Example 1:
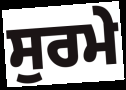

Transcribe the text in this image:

ਸੁਰਮੇ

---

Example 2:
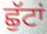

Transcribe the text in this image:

ਛੁੱਟਾਂ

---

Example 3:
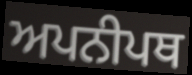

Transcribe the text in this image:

ਅਪਨੀਪਥ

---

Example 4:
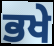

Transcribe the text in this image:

ਭਖੇ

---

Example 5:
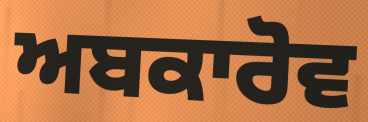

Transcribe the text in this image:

ਅਬਕਾਰੋਵ